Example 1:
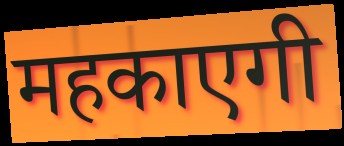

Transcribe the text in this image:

महकाएगी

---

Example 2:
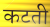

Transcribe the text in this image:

कटती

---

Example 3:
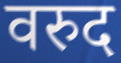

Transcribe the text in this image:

वरुद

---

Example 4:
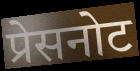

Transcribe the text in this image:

प्रेसनोट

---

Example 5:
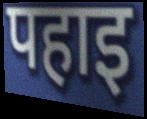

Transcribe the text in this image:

पहाइ